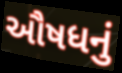
ઔષધનું